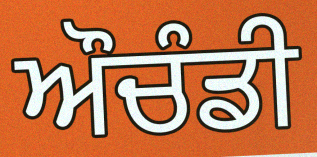
ਔਚੰਡੀ